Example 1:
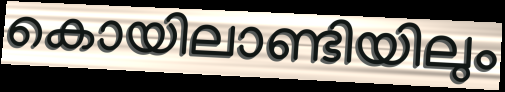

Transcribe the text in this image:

കൊയിലാണ്ടിയിലും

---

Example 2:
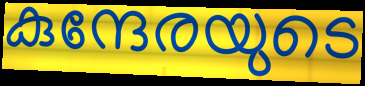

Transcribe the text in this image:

കുന്ദേരയുടെ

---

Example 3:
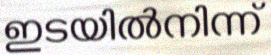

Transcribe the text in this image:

ഇടയിൽനിന്ന്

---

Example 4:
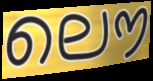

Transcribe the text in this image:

ലൌ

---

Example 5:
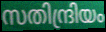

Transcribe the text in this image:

സതിന്ദ്രിയം